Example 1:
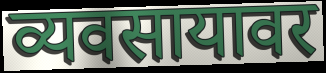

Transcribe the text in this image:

व्यवसायावर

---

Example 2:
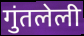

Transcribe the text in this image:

गुंतलेली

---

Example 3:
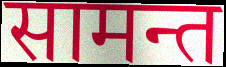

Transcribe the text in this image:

सामन्त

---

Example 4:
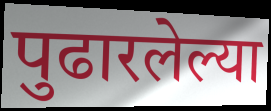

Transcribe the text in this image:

पुढारलेल्या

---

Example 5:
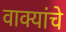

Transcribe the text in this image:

वाक्यांचे